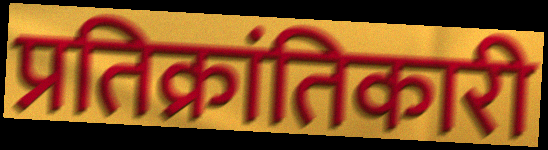
प्रतिक्रांतिकारी